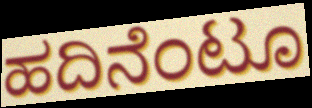
ಹದಿನೆಂಟೂ